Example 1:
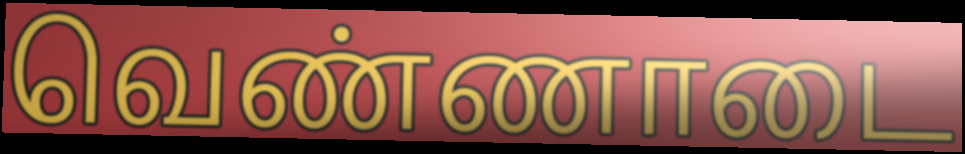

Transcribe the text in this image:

வெண்ணாடை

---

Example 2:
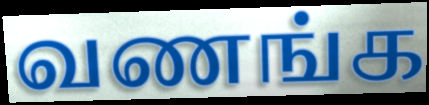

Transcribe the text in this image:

வணங்க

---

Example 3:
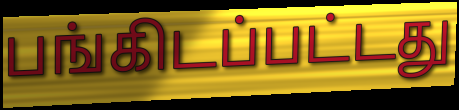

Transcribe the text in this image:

பங்கிடப்பட்டது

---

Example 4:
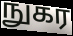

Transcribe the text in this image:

நுகர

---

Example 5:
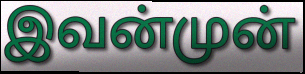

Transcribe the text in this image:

இவன்முன்